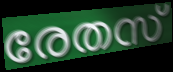
രേതസ്